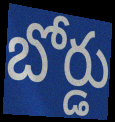
బోర్డు